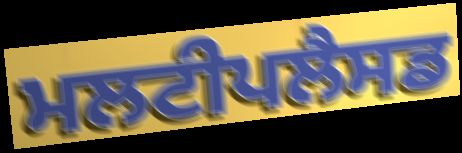
ਮਲਟੀਪਲੈਸਡ